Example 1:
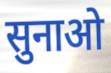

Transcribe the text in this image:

सुनाओ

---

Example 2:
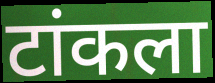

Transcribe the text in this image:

टांकला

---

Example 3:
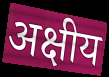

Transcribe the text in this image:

अक्षीय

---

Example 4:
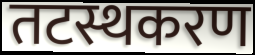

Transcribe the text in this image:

तटस्थकरण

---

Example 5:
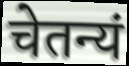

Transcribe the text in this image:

चेतन्यं